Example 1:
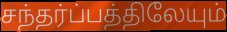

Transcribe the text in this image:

சந்தர்ப்பத்திலேயும்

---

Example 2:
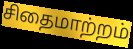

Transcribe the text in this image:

சிதைமாற்றம்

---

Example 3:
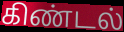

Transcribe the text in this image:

கிண்டல்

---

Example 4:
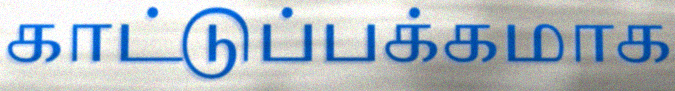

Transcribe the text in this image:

காட்டுப்பக்கமாக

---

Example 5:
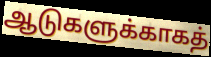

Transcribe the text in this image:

ஆடுகளுக்காகத்